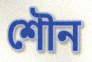
শৌন